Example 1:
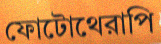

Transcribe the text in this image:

ফোটোথেরাপি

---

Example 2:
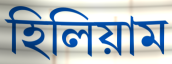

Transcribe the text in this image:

হিলিয়াম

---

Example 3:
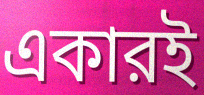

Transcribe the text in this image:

একারই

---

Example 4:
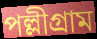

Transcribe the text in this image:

পল্লীগ্রাম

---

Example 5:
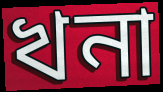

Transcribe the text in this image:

খনা